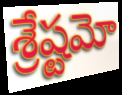
శ్రేష్టమో